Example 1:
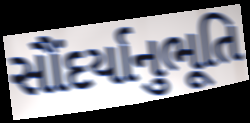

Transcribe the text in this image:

સૌંદર્યાનુભૂતિ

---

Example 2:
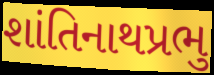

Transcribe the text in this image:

શાંતિનાથપ્રભુ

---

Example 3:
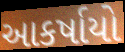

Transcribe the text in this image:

આકર્ષાયો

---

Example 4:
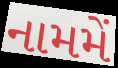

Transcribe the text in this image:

નામમેં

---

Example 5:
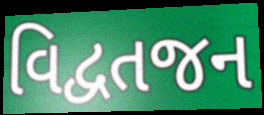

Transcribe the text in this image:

વિદ્વતજન